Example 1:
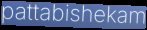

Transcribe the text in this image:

pattabishekam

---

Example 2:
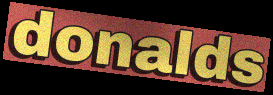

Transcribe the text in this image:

donalds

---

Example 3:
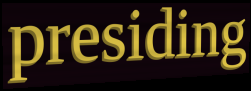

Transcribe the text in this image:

presiding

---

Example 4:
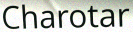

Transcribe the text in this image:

Charotar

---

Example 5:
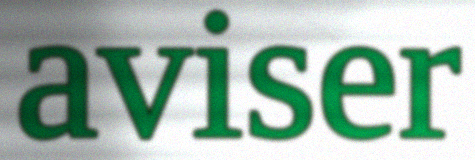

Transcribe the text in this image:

aviser